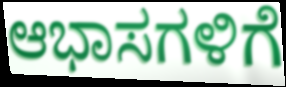
ಆಭಾಸಗಳಿಗೆ